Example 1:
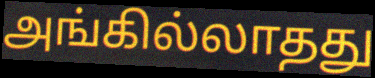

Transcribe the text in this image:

அங்கில்லாதது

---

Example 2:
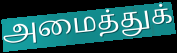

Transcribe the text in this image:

அமைத்துக்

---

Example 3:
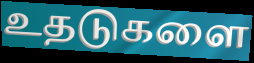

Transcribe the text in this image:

உதடுகளை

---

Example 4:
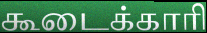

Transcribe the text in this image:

கூடைக்காரி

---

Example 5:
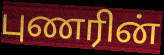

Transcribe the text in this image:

புணரின்